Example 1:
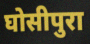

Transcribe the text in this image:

घोसीपुरा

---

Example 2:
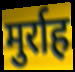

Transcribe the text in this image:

मुर्राह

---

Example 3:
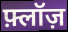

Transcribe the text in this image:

फ़्लॉज़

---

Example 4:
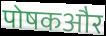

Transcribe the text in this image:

पोषकऔर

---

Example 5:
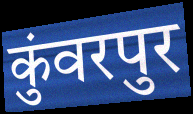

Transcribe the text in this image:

कुंवरपुर